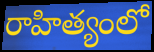
రాహిత్యంలో